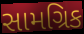
સામગ્રિક